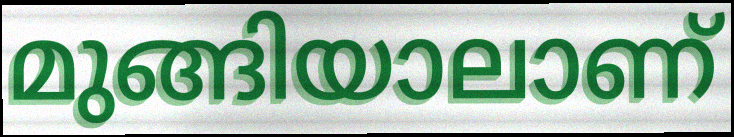
മുങ്ങിയാലാണ്